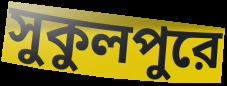
সুকুলপুরে